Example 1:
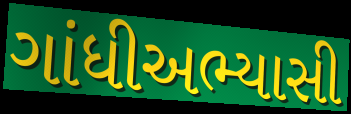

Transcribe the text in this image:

ગાંધીઅભ્યાસી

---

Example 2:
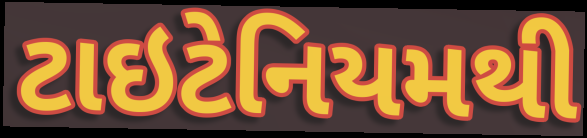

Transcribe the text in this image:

ટાઇટેનિયમથી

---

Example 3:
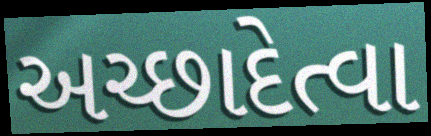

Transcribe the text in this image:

અચ્છાદેત્વા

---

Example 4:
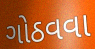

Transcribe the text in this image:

ગોઠવવા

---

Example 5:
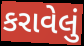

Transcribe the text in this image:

કરાવેલું